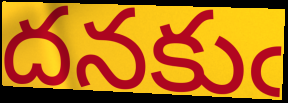
దనకుఁ